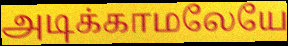
அடிக்காமலேயே